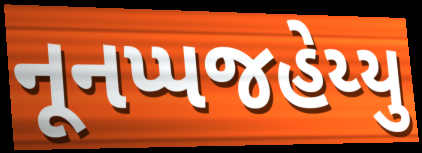
નૂનપ્પજહેય્યુ